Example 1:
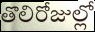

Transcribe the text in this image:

తొలిరోజుల్లో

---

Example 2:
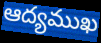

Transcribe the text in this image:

ఆద్యముఖ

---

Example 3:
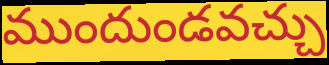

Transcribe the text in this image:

ముందుండవచ్చు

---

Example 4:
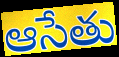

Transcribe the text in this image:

ఆసేతు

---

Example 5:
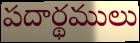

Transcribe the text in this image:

పదార్థములు